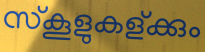
സ്കൂളുകള്ക്കും